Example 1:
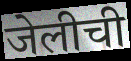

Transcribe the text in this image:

जेलीची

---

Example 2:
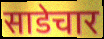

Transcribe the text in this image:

साडेचार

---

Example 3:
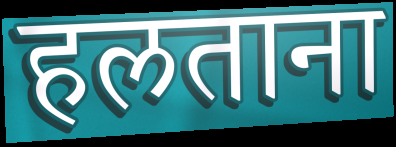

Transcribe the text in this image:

हलताना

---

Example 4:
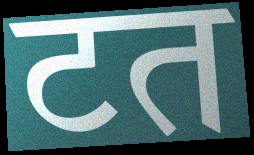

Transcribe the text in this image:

टत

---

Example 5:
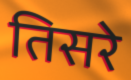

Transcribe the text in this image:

तिसरे